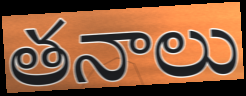
తనాలు